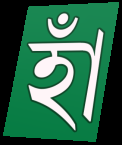
হাঁ